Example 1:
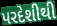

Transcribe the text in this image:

પરદેશીથી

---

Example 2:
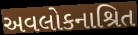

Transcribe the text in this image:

અવલોકનાશ્રિત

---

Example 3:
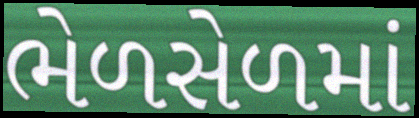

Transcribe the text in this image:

ભેળસેળમાં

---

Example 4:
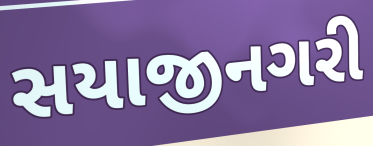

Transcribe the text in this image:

સયાજીનગરી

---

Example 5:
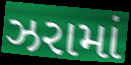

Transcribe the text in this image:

ઝરામાં